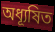
অধ্যূষিত